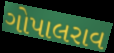
ગોપાલરાવ